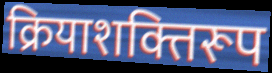
क्रियाशक्तिरूप